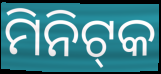
ମିନିଟ୍‌କ